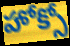
హోక్సో